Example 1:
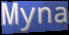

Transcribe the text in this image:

Myna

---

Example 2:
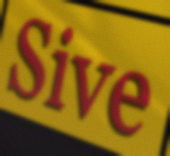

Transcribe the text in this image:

Sive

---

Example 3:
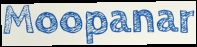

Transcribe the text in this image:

Moopanar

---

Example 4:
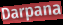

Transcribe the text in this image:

Darpana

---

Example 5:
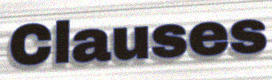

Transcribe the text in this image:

Clauses